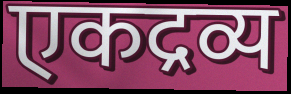
एकद्रव्य